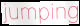
jumping